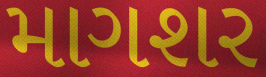
માગશર